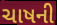
ચાષની